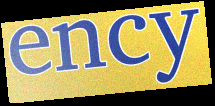
ency